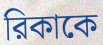
রিকাকে